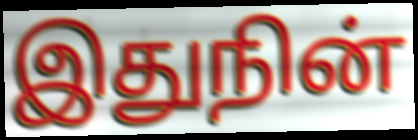
இதுநின்